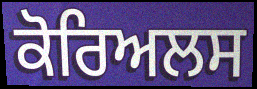
ਕੋਰਿਅਲਸ